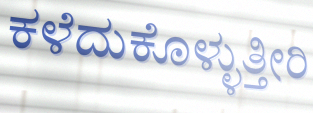
ಕಳೆದುಕೊಳ್ಳುತ್ತೀರಿ